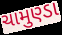
ચામુણ્ડા